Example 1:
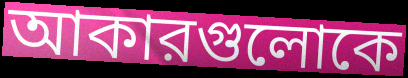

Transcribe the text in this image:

আকারগুলোকে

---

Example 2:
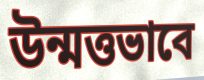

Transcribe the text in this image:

উন্মত্তভাবে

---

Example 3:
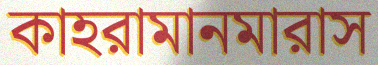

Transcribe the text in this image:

কাহরামানমারাস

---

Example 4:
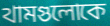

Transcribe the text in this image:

থামগুলোকে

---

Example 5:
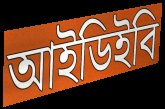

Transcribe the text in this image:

আইডিইবি